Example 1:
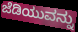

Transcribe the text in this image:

ಜೆಡಿಯುವನ್ನು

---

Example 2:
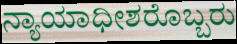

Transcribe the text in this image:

ನ್ಯಾಯಾಧೀಶರೊಬ್ಬರು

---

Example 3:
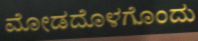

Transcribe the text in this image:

ಮೋಡದೊಳಗೊಂದು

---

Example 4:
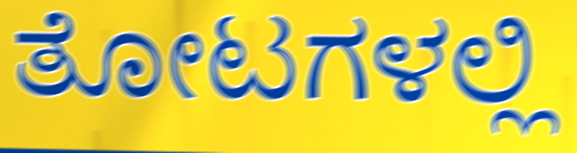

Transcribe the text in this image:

ತೋಟಗಳಲ್ಲಿ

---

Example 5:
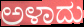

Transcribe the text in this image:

ಅಳಾದು